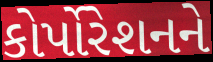
કોર્પોરેશનને